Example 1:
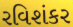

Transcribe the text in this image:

રવિશંકર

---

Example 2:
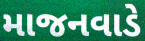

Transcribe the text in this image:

માજનવાડે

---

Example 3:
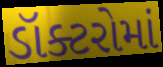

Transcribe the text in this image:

ડૉક્ટરોમાં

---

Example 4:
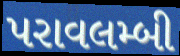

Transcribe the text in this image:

પરાવલમ્બી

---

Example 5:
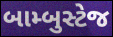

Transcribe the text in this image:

બામ્બુસ્ટેજ